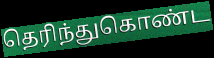
தெரிந்துகொண்ட